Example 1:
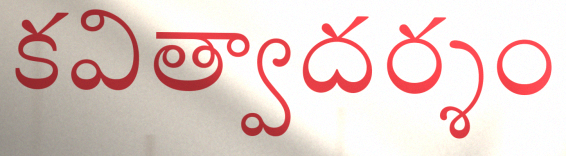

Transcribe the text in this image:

కవిత్వాదర్శం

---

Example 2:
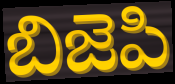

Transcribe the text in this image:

బిజెపి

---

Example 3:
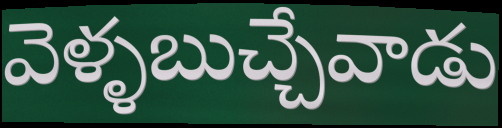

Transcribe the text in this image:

వెళ్ళబుచ్చేవాడు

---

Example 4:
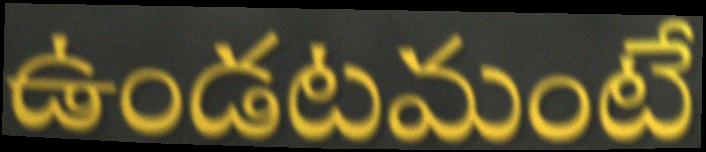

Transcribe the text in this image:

ఉండటమంటే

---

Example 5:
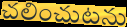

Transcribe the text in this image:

చలించుటను